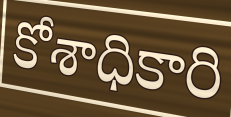
కోశాధికారి